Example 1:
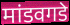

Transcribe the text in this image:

मांडवगडे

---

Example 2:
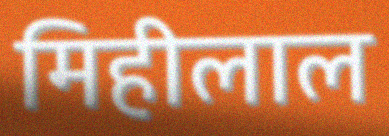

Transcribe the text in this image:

मिहीलाल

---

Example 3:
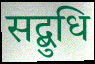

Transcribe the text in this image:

सद्बुधि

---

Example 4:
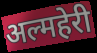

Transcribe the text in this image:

अल्महेरी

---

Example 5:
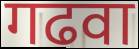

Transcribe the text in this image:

गढवा